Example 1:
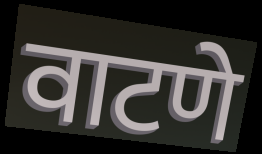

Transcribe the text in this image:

वाटणे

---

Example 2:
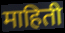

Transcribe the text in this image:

माहिती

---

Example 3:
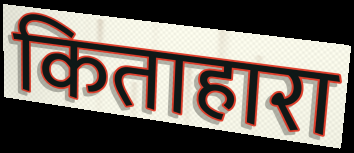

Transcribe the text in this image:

किताहारा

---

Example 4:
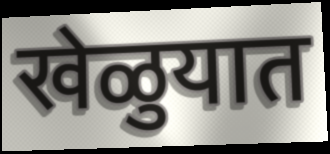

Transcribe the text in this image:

खेळुयात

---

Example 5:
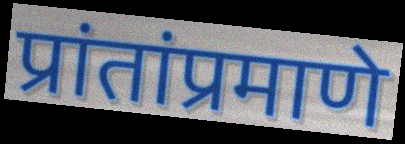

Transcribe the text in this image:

प्रांतांप्रमाणे